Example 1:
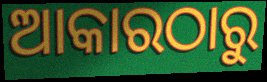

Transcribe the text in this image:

ଆକାରଠାରୁ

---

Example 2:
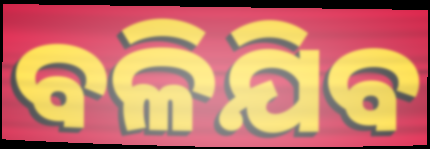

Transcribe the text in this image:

ବଳିଯିବ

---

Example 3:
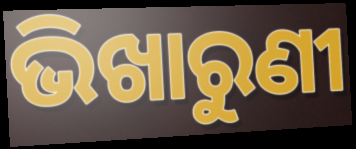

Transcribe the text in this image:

ଭିଖାରୁଣୀ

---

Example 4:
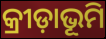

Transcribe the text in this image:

କ୍ରୀଡ଼ାଭୂମି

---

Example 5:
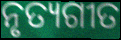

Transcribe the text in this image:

ନୃତ୍ୟଗୀତ